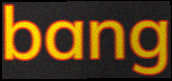
bang